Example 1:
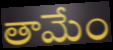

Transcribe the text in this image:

తామేం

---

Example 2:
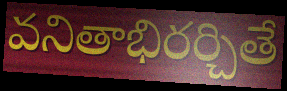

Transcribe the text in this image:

వనితాభిరర్చితే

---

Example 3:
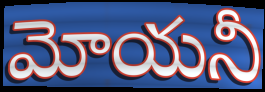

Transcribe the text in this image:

మోయనీ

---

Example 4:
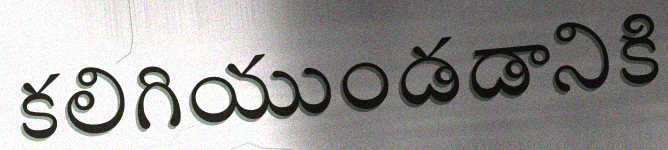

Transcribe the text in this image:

కలిగియుండడానికి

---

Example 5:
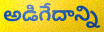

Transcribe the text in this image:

అడిగేదాన్ని